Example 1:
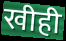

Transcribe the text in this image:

खीही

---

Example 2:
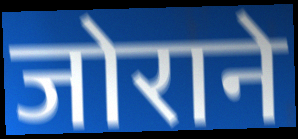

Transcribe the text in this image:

जोराने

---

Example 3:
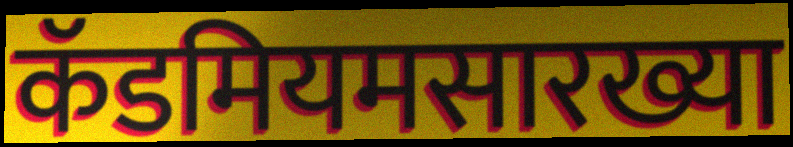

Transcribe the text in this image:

कॅडमियमसारख्या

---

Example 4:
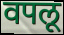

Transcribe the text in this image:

वपलू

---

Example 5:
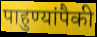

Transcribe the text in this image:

पाहुण्यांपैकी